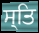
ਸ੍ਤਿ